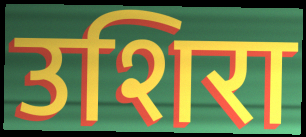
उशिरा